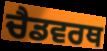
ਚੈਡਵਰਥ